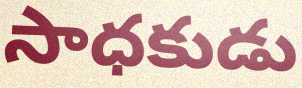
సాధకుడు